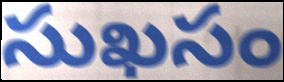
సుఖసం